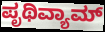
ಪೃಥಿವ್ಯಾಮ್